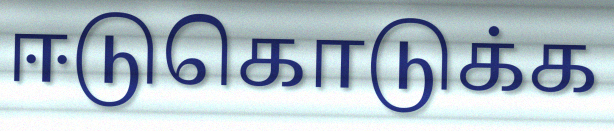
ஈடுகொடுக்க